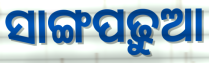
ସାଙ୍ଗପଢ଼ୁଆ